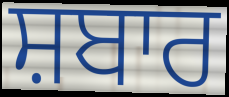
ਸ਼ਬਾਰ